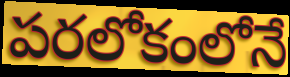
పరలోకంలోనే